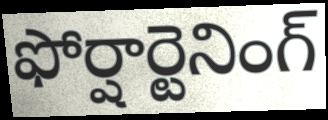
ఫోర్షార్టెనింగ్